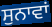
ਸੁਨਾਵਾਂ